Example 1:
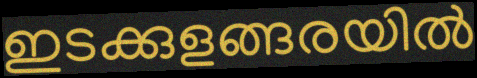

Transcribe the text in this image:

ഇടക്കുളങ്ങരയിൽ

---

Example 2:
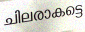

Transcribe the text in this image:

ചിലരാകട്ടെ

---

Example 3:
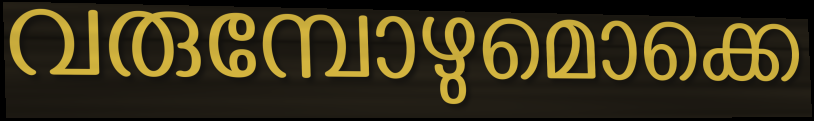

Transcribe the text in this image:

വരുമ്പോഴുമൊക്കെ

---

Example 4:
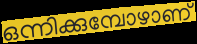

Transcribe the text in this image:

ഒന്നിക്കുമ്പോഴാണ്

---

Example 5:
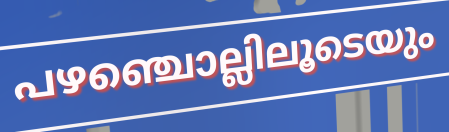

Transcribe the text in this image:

പഴഞ്ചൊല്ലിലൂടെയും